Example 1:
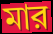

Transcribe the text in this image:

মার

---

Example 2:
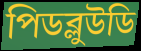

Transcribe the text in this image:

পিডব্লুউডি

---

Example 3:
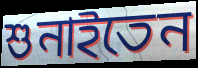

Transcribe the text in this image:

শুনাইতেন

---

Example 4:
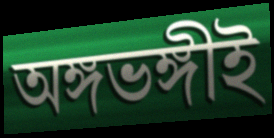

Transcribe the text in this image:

অঙ্গভঙ্গীই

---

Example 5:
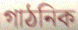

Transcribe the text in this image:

গাঠনিক